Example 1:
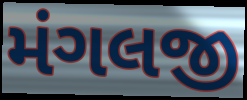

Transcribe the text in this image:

મંગલજી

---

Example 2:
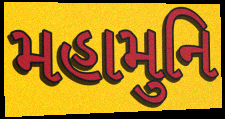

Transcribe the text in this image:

મહામુનિ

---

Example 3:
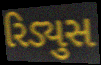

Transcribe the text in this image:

રિડ્યુસ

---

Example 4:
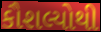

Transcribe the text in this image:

કૌશલ્યોથી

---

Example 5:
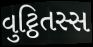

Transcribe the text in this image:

વુટ્ઠિતસ્સ